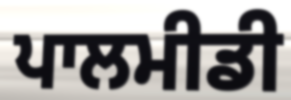
ਪਾਲਮੀਡੀ